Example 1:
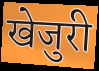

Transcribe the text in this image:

खेजुरी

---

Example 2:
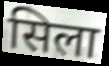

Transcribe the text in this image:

सिला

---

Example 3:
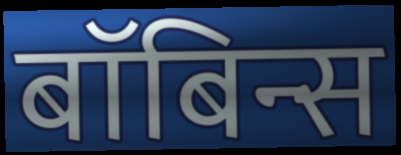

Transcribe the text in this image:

बॉबिन्स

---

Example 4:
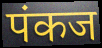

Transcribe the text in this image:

पंकज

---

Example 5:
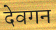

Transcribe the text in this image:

देवगन